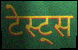
टेस्ट्स